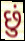
છું